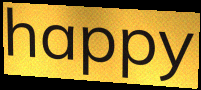
happy